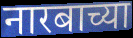
नारबाच्या